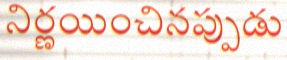
నిర్ణయించినప్పుడు